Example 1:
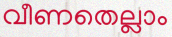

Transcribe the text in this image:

വീണതെല്ലാം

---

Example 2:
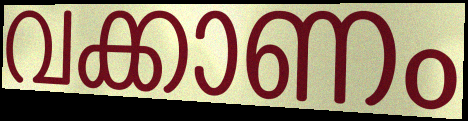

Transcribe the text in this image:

വക്കാണം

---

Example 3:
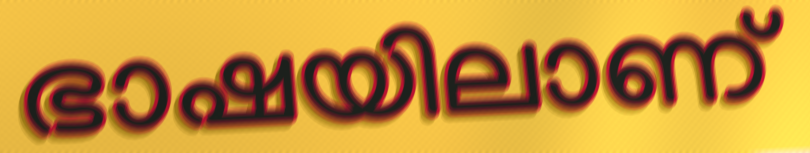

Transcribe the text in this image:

ഭാഷയിലാണ്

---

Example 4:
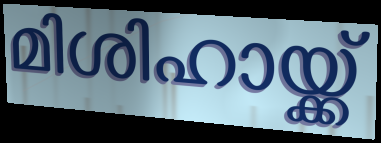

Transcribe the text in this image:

മിശിഹായ്ക്ക്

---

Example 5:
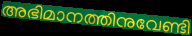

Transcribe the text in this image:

അഭിമാനത്തിനുവേണ്ടി